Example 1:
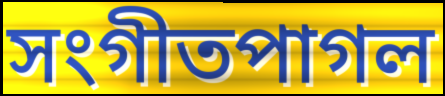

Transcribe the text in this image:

সংগীতপাগল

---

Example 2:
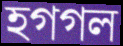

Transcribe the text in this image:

হগগল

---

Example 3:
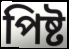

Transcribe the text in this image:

পিষ্ট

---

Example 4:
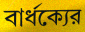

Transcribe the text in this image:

বার্ধক্যের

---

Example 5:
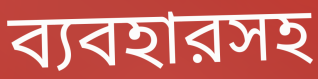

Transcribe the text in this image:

ব্যবহারসহ